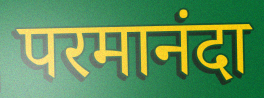
परमानंदा